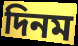
দিনম